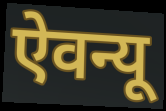
ऐवन्यू